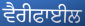
ਵੈਰੀਫਾਈਲ